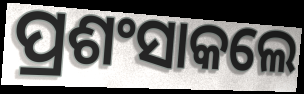
ପ୍ରଶଂସାକଲେ